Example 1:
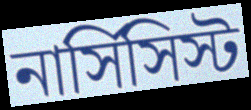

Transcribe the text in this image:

নার্সিসিস্ট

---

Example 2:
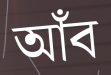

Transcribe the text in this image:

আঁব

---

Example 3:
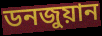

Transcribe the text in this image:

ডনজুয়ান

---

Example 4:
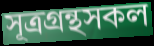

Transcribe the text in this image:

সূত্রগ্রন্থসকল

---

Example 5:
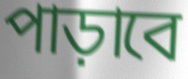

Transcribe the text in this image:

পাড়াবে